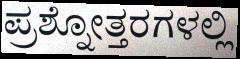
ಪ್ರಶ್ನೋತ್ತರಗಳಲ್ಲಿ